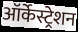
ऑर्केस्ट्रेशन